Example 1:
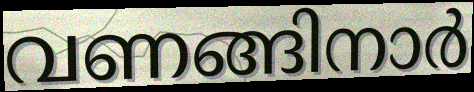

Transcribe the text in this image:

വണങ്ങിനാർ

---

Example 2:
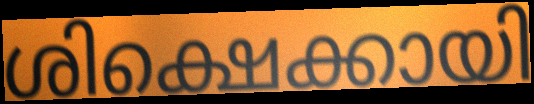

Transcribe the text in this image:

ശിക്ഷെക്കായി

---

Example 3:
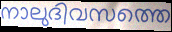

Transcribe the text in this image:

നാലുദിവസത്തെ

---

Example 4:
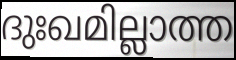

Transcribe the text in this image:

ദുഃഖമില്ലാത്ത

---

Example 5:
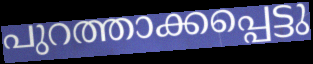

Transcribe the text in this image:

പുറത്താക്കപ്പെട്ടു